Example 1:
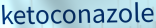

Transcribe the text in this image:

ketoconazole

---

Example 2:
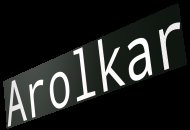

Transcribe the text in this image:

Arolkar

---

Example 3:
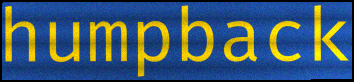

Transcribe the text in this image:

humpback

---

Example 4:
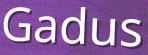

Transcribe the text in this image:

Gadus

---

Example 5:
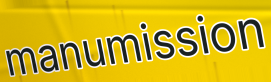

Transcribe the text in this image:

manumission